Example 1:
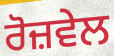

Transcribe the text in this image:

ਰੋਜ਼ਵੇਲ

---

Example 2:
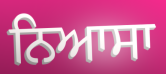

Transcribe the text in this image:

ਨਿਆਸਾ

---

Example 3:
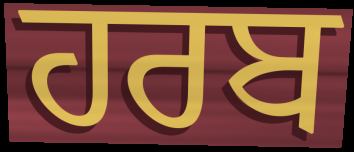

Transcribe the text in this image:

ਹਰਬ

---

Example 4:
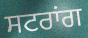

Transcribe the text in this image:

ਸਟਰਾਂਗ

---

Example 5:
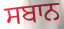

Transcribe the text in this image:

ਸਬਾਨ